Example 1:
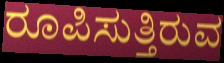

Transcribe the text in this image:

ರೂಪಿಸುತ್ತಿರುವ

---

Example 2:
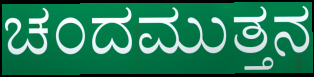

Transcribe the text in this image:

ಚಂದಮುತ್ತನ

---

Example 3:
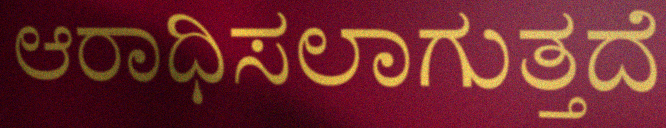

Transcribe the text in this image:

ಆರಾಧಿಸಲಾಗುತ್ತದೆ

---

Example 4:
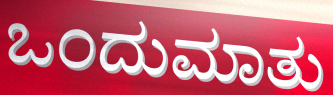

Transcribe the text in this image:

ಒಂದುಮಾತು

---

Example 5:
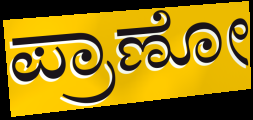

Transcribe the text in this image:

ಪ್ರಾಣೋ